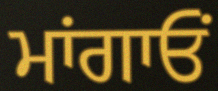
ਮਾਂਗਾਓਂ